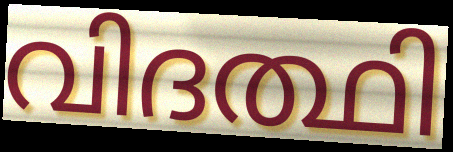
വിദത്ഥി